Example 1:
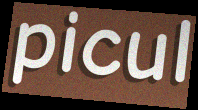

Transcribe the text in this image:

picul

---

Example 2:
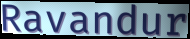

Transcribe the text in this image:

Ravandur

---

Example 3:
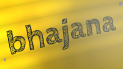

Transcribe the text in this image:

bhajana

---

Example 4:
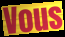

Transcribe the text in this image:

Vous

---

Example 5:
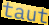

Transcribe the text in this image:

taut